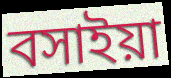
বসাইয়া